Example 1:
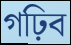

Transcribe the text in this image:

গঢ়িব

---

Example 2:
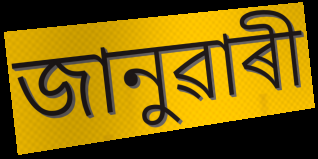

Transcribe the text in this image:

জানুৱাৰী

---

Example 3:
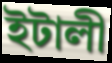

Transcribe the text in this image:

ইটালী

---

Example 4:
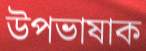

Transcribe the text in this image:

উপভাষাক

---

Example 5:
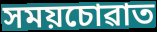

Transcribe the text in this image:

সময়চোৱাত